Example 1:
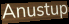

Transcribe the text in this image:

Anustup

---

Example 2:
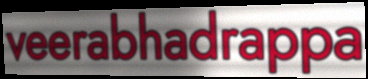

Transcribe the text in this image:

veerabhadrappa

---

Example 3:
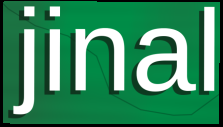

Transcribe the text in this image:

jinal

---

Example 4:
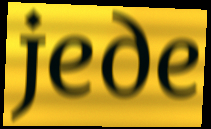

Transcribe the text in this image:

jede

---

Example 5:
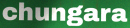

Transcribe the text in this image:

chungara